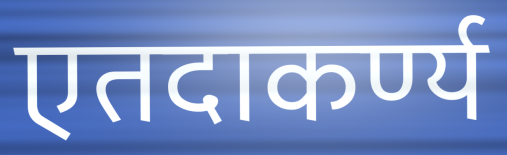
एतदाकर्ण्य